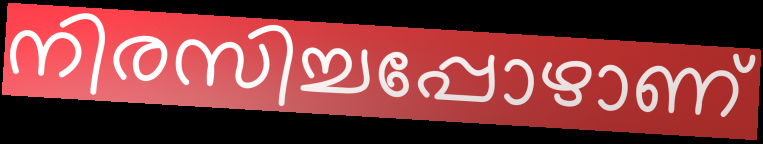
നിരസിച്ചപ്പോഴാണ്